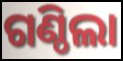
ଗଣ୍ଠିଲା